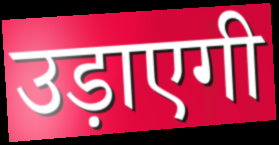
उड़ाएगी